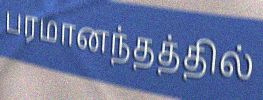
பரமானந்தத்தில்